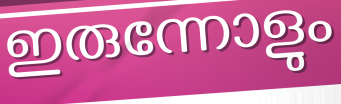
ഇരുന്നോളും